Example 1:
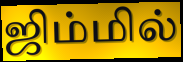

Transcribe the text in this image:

ஜிம்மில்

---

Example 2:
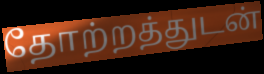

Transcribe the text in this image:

தோற்றத்துடன்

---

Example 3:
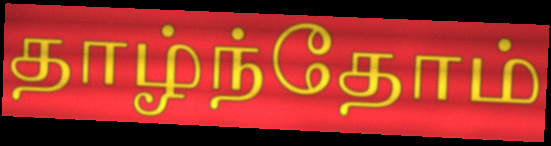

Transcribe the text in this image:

தாழ்ந்தோம்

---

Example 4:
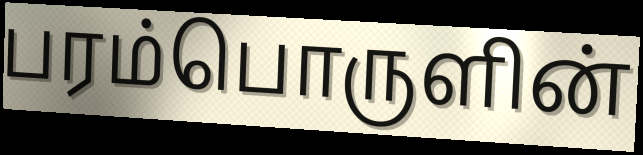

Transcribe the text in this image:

பரம்பொருளின்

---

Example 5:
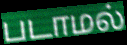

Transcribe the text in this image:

படாமல்